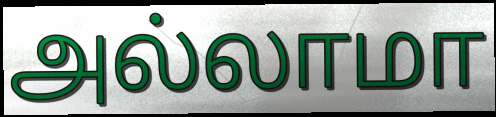
அல்லாமா